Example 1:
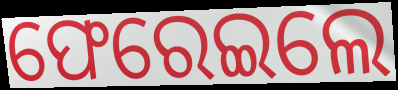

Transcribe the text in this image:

ଫେରେଇଲେ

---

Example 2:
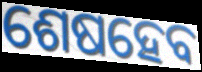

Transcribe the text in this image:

ଶେଷହେବ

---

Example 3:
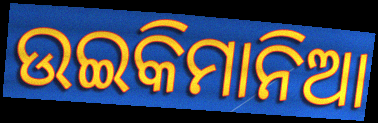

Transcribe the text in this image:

ଉଇକିମାନିଆ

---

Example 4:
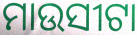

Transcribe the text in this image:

ମାଉସୀଟା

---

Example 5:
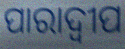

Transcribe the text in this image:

ପାରାଦ୍ୱୀପ